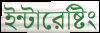
ইন্টারেষ্টিং